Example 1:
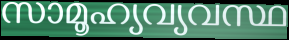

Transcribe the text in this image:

സാമൂഹ്യവ്യവസ്ഥ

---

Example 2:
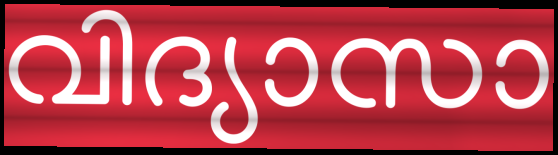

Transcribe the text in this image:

വിദ്യാസാ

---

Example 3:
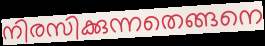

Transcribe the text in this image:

നിരസിക്കുന്നതെങ്ങനെ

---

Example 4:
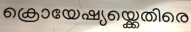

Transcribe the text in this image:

ക്രൊയേഷ്യയ്ക്കെതിരെ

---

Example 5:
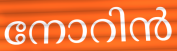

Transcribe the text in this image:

നോറിൻ